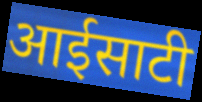
आईसाटी